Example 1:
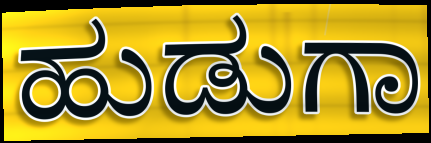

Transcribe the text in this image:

ಹುಡುಗಾ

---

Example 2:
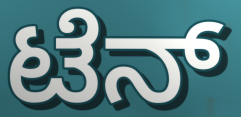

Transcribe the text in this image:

ಟೆನ್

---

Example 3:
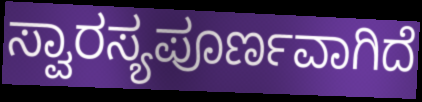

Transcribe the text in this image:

ಸ್ವಾರಸ್ಯಪೂರ್ಣವಾಗಿದೆ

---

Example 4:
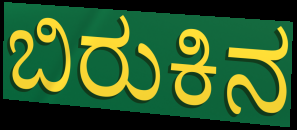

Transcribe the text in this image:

ಬಿರುಕಿನ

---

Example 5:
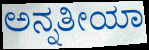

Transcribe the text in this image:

ಅನ್ನತೀಯಾ